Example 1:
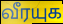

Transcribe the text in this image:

வீரயுக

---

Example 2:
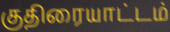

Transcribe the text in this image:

குதிரையாட்டம்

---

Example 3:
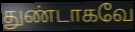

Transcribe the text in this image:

துண்டாகவே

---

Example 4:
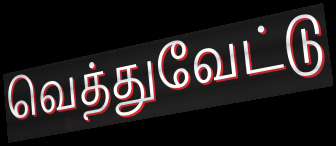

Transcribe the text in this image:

வெத்துவேட்டு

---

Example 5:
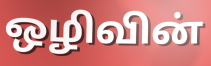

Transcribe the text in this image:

ஒழிவின்